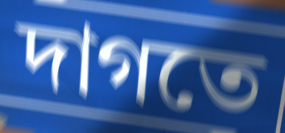
দাগতে